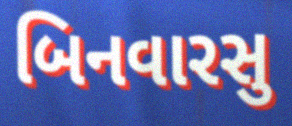
બિનવારસુ